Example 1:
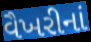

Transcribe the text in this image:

વૈખરીનાં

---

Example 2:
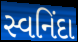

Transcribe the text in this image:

સ્વનિંદા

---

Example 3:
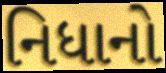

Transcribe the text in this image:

નિધાનો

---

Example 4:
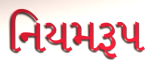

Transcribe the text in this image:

નિયમરૂપ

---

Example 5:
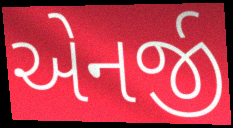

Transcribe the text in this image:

એનર્જી